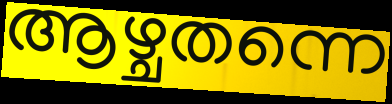
ആഴ്ചതന്നെ